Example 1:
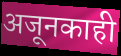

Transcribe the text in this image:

अजूनकाही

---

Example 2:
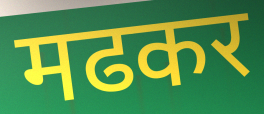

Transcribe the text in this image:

मढकर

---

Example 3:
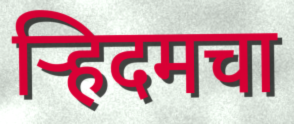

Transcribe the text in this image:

ऱ्हिदमचा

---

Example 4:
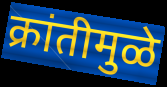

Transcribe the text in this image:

क्रांतीमुळे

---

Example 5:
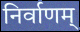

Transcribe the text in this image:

निर्वाणम्